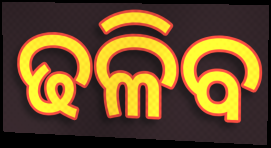
ଢଳିବ